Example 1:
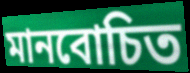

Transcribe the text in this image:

মানবোচিত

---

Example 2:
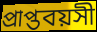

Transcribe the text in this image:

প্রাপ্তবয়সী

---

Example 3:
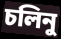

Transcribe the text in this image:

চলিনু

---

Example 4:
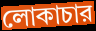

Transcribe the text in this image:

লোকাচার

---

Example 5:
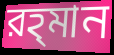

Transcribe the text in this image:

রহ্‌মান